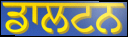
ਡਾਲਟਨ